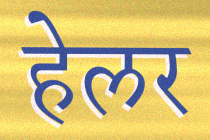
हेलर